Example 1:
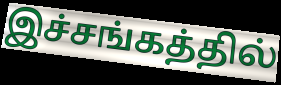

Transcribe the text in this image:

இச்சங்கத்தில்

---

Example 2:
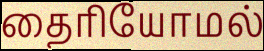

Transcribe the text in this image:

தைரியோமல்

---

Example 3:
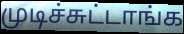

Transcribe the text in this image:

முடிச்சுட்டாங்க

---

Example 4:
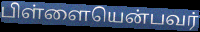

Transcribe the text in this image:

பிள்ளையென்பவர்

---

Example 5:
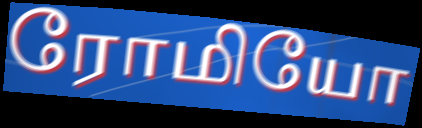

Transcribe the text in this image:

ரோமியோ